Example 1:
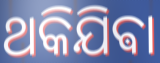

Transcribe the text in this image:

ଥକିଯିଵା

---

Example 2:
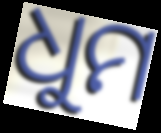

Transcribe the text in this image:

ଧୁମ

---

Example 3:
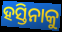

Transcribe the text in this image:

ହସ୍ତିନାକୁ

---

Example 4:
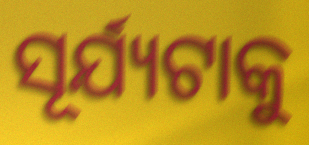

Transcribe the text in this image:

ସୂର୍ଯ୍ୟଟାକୁ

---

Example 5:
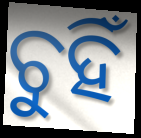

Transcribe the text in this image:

ଚୁହିଁ